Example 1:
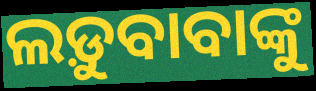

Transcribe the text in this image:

ଲଡ଼ୁବାବାଙ୍କୁ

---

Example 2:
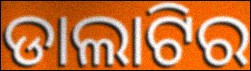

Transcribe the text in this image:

ଡାଲାଟିର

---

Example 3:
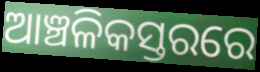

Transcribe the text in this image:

ଆଞ୍ଚଳିକସ୍ତରରେ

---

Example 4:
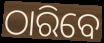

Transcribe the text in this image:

ଠାରିବେ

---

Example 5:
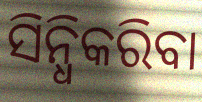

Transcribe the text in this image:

ସିନ୍ଧିକରିବା